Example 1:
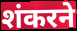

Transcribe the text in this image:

शंकरने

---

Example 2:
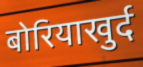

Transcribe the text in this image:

बोरियाखुर्द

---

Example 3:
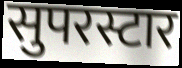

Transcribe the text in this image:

सुपरस्टार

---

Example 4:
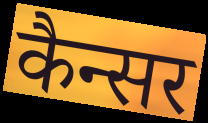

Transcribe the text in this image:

कैन्सर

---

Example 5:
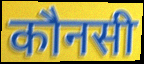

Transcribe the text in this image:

कौनसी